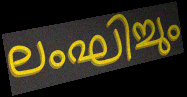
ലംഘിച്ചും